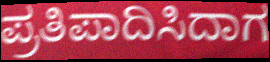
ಪ್ರತಿಪಾದಿಸಿದಾಗ